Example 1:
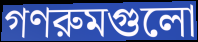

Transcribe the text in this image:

গণরুমগুলো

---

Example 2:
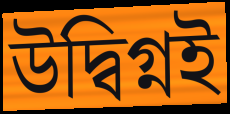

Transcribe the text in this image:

উদ্বিগ্নই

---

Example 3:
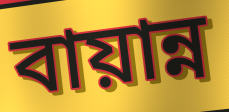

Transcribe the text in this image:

বায়ান্ন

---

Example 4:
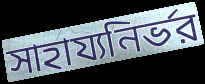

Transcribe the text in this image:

সাহায্যনির্ভর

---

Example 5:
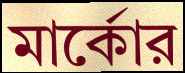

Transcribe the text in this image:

মার্কোর